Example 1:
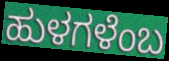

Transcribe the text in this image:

ಹುಳಗಳೆಂಬ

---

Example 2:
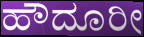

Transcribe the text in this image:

ಹೌದೂರೀ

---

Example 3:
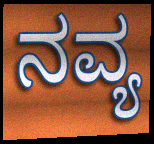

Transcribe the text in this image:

ನವ್ಯ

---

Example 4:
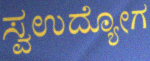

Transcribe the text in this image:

ಸ್ವಉದ್ಯೋಗ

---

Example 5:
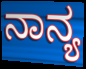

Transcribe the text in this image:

ನಾನ್ಯ